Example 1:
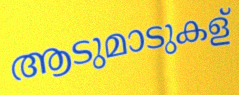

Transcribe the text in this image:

ആടുമാടുകള്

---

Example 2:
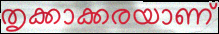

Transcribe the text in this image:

തൃക്കാക്കരയാണ്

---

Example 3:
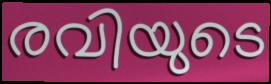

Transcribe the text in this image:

രവിയുടെ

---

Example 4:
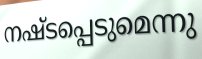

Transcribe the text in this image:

നഷ്ടപ്പെടുമെന്നു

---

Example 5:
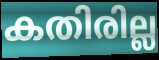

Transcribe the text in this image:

കതിരില്ല